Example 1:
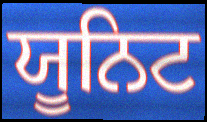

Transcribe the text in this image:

ਯੂਨਿਟ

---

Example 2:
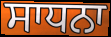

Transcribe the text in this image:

ਸਾਧਨਾ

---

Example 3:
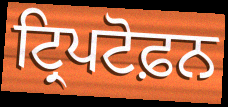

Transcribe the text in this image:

ਟ੍ਰਿਪਟੋਫ਼ਨ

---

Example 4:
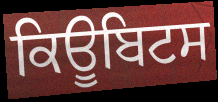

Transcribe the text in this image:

ਕਿਊਬਿਟਸ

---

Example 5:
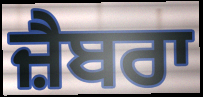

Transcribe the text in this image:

ਜ਼ੈਬਰਾ